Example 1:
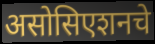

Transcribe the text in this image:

असोसिएशनचे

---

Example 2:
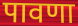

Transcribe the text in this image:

पावणा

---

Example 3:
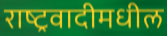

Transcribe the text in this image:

राष्ट्रवादीमधील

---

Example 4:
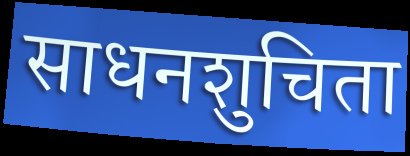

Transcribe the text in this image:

साधनशुचिता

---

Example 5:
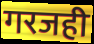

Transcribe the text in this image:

गरजही